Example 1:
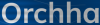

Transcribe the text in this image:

Orchha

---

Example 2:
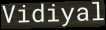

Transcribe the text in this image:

Vidiyal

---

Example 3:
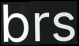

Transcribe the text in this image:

brs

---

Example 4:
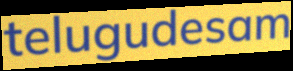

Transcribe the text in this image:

telugudesam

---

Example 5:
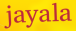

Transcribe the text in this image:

jayala